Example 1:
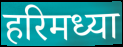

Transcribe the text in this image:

हरिमध्या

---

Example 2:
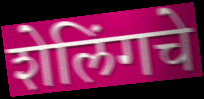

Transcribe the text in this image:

शेलिंगचे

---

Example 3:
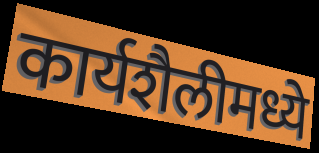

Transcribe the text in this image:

कार्यशैलीमध्ये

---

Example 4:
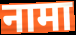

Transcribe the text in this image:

नामा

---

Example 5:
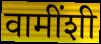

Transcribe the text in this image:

वामींशी